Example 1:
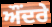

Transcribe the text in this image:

ਔਂਦਰੇ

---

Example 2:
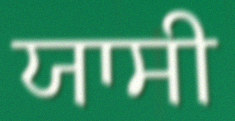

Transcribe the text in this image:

ਯਾਸੀ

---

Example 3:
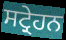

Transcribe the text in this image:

ਸਟ੍ਰੇਹਨ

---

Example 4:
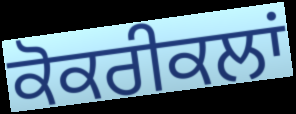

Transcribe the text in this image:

ਕੋਕਰੀਕਲਾਂ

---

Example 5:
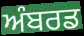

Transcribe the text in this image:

ਅੰਬਰਡ